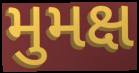
મુમક્ષ